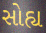
સોહ્ય